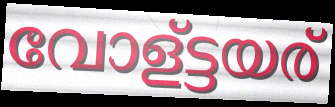
വോള്ട്ടയര്